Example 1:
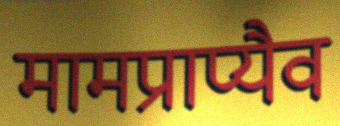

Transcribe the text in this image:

मामप्राप्यैव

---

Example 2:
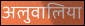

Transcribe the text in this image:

अलुवालिया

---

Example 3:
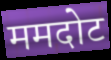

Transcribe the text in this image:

ममदोट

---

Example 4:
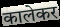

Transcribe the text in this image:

कालेकर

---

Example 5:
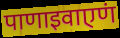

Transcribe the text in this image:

पाणाइवाएणं